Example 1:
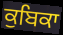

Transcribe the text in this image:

ਕੁਬਿਕਾ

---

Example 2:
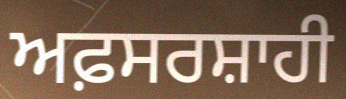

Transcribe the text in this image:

ਅਫ਼ਸਰਸ਼ਾਹੀ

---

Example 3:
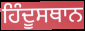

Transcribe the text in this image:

ਹਿੰਦੂਸਥਾਨ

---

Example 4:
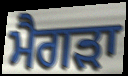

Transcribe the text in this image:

ਮੈਗੜਾ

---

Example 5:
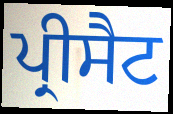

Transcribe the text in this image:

ਪ੍ਰੀਸੈਟ